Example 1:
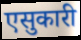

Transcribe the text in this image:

एसुकारी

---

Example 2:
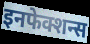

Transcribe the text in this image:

इनफेक्शन्स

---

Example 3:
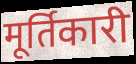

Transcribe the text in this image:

मूर्तिकारी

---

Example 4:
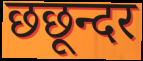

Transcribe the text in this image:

छछून्दर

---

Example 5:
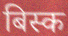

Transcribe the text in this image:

बिस्क